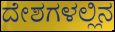
ದೇಶಗಳಲ್ಲಿನ